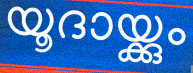
യൂദായ്ക്കും